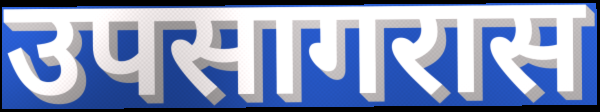
उपसागरास